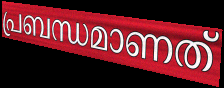
പ്രബന്ധമാണത്